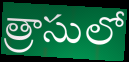
త్రాసులో